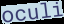
oculi